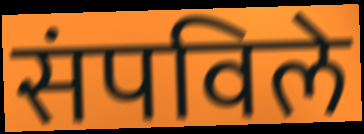
संपविले